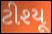
ટીશ્યૂ